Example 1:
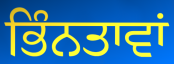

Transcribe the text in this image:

ਭਿੰਨਤਾਵਾਂ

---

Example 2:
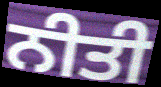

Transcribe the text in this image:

ਨੀਤੀ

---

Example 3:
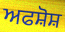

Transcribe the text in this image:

ਅਫਸ਼ੋਸ਼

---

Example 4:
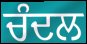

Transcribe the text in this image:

ਚੰਦਲ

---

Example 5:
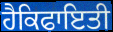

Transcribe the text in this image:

ਹੈਕਿਫਾਇਤੀ